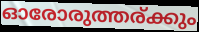
ഓരോരുത്തര്ക്കും